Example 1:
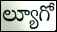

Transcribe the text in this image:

ల్యూగో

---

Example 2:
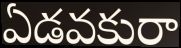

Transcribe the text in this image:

ఏడవకురా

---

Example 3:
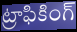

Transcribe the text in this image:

ట్రాఫికింగ్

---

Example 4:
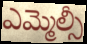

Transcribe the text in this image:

ఎమ్మెల్సీ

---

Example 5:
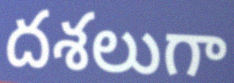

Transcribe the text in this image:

దశలుగా